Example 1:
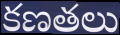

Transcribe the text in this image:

కణతలు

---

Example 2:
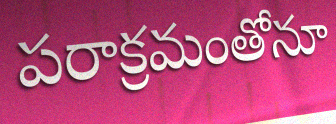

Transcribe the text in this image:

పరాక్రమంతోనూ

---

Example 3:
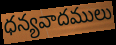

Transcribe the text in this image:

ధన్యవాదములు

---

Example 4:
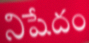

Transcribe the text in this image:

నిషేదం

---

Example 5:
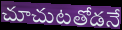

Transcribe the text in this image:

చూచుటతోడనే